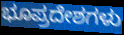
ಭೂಪ್ರದೇಶಗಳು